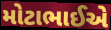
મોટાભાઈએ